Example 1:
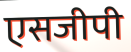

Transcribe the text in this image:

एसजीपी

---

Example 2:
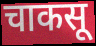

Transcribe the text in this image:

चाकसू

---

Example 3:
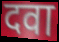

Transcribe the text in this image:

दवा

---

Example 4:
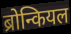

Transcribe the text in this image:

ब्रोन्कियल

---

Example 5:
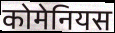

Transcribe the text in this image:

कोमेनियस